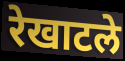
रेखाटले